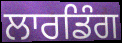
ਲਾਰਡਿੰਗ